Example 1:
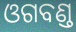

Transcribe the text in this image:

ଓଗବଣ୍ଡ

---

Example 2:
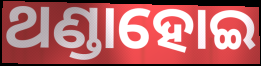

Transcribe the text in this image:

ଥଣ୍ଡାହୋଇ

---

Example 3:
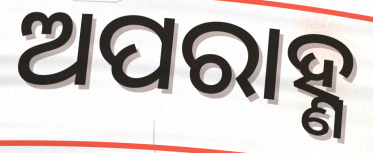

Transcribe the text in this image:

ଅପରାହ୍ଣ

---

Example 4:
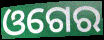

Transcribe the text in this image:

ଓଗେର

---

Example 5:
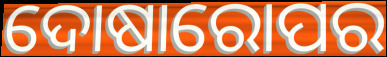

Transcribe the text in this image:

ଦୋଷାରୋପର